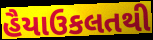
હૈયાઉકલતથી